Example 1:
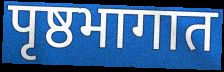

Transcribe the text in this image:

पृष्ठभागात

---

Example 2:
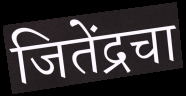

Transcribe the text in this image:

जितेंद्रचा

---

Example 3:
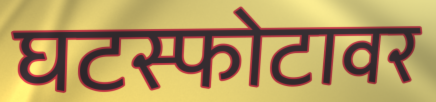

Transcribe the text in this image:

घटस्फोटावर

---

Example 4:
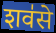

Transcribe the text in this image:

शव॑से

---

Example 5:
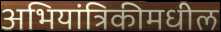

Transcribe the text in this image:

अभियांत्रिकीमधील